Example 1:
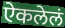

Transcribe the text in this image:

ऐकलेलं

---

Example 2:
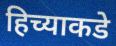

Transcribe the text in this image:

हिच्याकडे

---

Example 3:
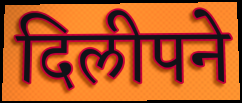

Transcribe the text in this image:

दिलीपने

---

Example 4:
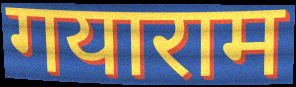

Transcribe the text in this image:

गयाराम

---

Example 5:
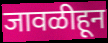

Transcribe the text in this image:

जावळीहून